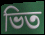
ভিত